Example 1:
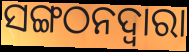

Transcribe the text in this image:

ସଙ୍ଗଠନଦ୍ୱାରା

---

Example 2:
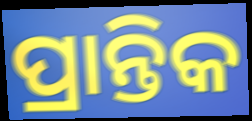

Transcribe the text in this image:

ପ୍ରାନ୍ତିକ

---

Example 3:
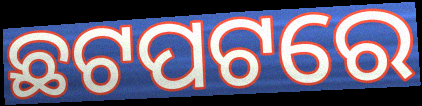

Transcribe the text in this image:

ଛଟପଟରେ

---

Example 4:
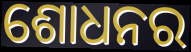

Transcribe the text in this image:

ଶୋଧନର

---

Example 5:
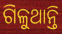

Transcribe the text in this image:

ଗିଳୁଥାନ୍ତି